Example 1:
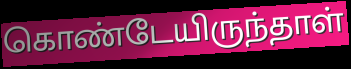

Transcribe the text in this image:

கொண்டேயிருந்தாள்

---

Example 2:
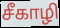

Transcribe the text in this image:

சீகாழி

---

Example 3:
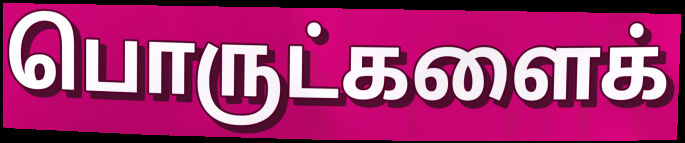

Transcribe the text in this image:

பொருட்களைக்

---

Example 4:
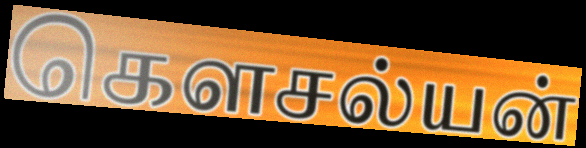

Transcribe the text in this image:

கௌசல்யன்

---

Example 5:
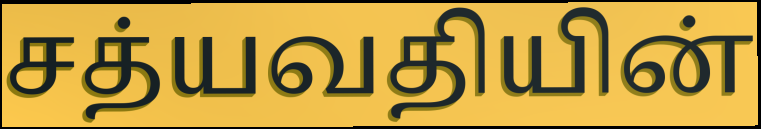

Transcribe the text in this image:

சத்யவதியின்